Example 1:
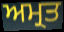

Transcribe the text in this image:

ਅਮ੍ਰਤ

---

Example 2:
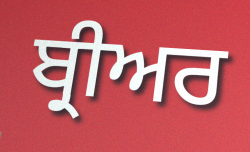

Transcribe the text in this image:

ਬ੍ਰੀਅਰ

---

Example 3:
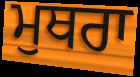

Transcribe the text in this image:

ਮੁਥਰਾ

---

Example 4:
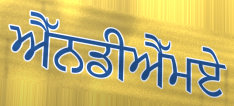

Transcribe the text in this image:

ਐੱਨਡੀਐੱਮਏ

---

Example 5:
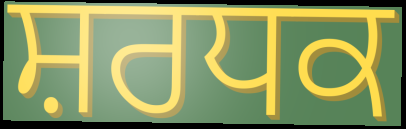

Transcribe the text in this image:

ਸ਼ਰਧਕ